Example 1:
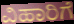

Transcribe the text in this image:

ವಿಹಾರಿಗೆ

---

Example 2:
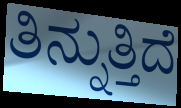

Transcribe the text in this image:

ತಿನ್ನುತ್ತಿದೆ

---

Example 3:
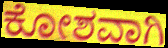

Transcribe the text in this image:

ಕೋಶವಾಗಿ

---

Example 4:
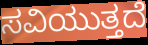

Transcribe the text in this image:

ಸವಿಯುತ್ತದೆ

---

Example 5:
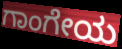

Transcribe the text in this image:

ಗಾಂಗೇಯ